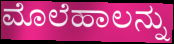
ಮೊಲೆಹಾಲನ್ನು